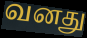
வனது